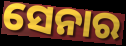
ସେନାର